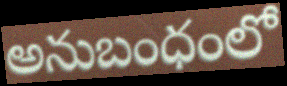
అనుబంధంలో